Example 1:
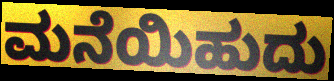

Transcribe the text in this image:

ಮನೆಯಿಹುದು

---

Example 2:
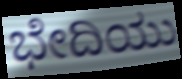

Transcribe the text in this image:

ಭೇದಿಯು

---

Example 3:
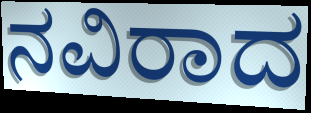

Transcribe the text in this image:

ನವಿರಾದ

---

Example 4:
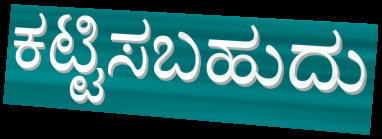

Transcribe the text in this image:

ಕಟ್ಟಿಸಬಹುದು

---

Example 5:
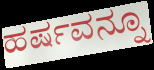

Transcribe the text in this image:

ಹರ್ಷವನ್ನೂ